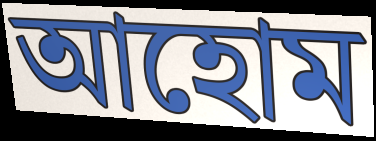
আহোম